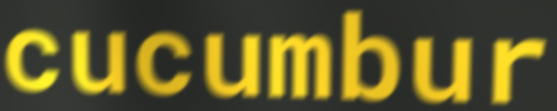
cucumbur